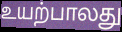
உயற்பாலது